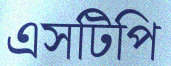
এসটিপি